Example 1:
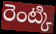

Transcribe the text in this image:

రెంట్కి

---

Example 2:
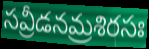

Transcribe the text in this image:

సవ్రీడనమ్రశిరసః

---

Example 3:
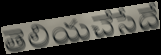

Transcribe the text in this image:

తెలియచేసేదే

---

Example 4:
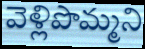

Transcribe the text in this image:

వెళ్లిపొమ్మని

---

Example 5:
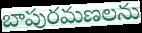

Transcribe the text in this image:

బాపురమణలను